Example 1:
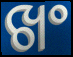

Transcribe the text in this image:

ଖଂ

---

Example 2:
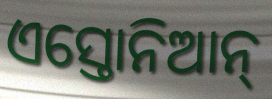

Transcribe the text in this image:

ଏସ୍ତୋନିଆନ୍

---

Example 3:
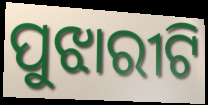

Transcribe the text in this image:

ପୁଝାରୀଟି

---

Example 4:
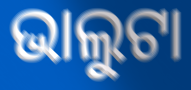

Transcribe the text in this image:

ଭାଲୁଟା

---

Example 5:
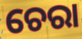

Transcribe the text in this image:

ଚେରା